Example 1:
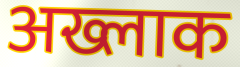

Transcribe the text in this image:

अख्लाक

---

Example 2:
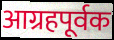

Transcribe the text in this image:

आग्रहपूर्वक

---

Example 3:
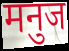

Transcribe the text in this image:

मनुज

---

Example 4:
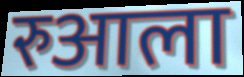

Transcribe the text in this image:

रुआला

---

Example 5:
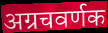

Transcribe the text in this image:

अग्रचवर्णक